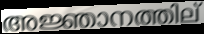
അജ്ഞാനത്തില്